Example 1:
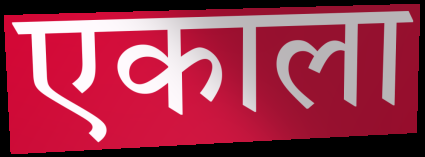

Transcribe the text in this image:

एकाला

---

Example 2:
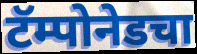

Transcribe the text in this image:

टॅम्पोनेडचा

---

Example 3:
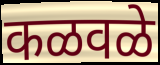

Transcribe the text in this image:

कळवळे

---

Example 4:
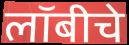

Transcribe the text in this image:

लॉबीचे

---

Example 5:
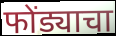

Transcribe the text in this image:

फोंड्याचा